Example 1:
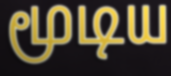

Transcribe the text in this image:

மூடிய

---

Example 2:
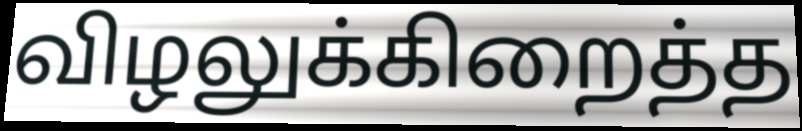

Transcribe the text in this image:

விழலுக்கிறைத்த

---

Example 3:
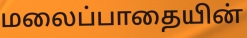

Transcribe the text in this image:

மலைப்பாதையின்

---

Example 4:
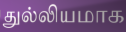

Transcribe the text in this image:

துல்லியமாக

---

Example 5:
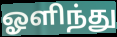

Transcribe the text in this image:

ஓளிந்து